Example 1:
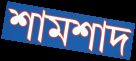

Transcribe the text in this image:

শামশাদ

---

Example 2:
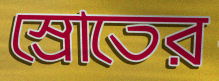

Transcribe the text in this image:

স্রোতের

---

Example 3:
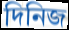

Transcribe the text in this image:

দিনিজ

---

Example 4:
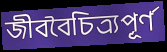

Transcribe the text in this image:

জীববৈচিত্র্যপূর্ণ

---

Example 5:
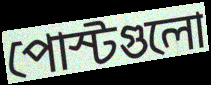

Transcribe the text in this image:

পোস্টগুলো